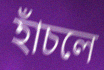
হাঁচলে